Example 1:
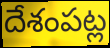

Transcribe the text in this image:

దేశంపట్ల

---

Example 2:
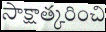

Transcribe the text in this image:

సాక్షాత్కరించి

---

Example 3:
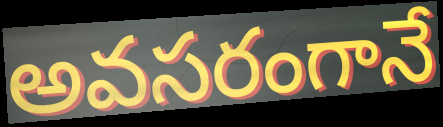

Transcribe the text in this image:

అవసరంగానే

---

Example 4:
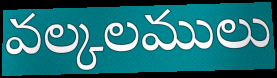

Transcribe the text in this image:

వల్కలములు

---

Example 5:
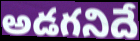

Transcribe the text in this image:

అడగనిదే